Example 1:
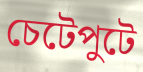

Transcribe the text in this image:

চেটেপুটে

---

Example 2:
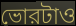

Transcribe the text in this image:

ভোরটাও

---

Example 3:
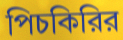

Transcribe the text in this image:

পিচকিরির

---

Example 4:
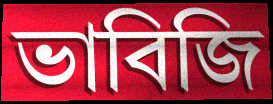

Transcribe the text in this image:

ভাবিজি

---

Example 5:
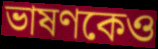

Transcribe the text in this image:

ভাষণকেও